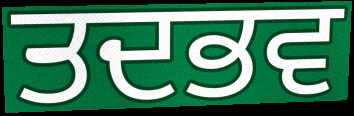
ਤਦਭਵ